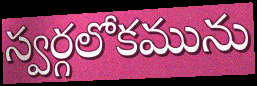
స్వర్గలోకమును